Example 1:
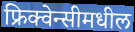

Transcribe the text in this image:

फ्रिक्वेन्सीमधील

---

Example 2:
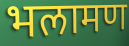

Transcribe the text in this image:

भलामण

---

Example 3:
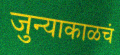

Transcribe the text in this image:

जुन्याकाळचं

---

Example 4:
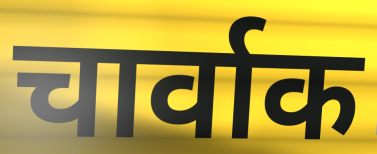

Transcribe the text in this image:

चार्वाक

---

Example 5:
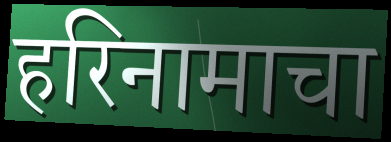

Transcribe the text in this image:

हरिनामाचा